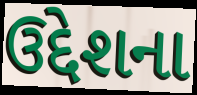
ઉદ્દેશના